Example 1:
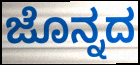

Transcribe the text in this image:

ಜೊನ್ನದ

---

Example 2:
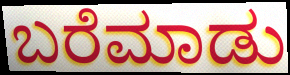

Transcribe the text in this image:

ಬರೆಮಾಡು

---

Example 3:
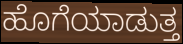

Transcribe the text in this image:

ಹೊಗೆಯಾಡುತ್ತ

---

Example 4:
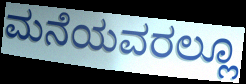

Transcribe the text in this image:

ಮನೆಯವರಲ್ಲೂ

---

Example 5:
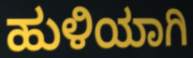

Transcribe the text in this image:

ಹುಳಿಯಾಗಿ